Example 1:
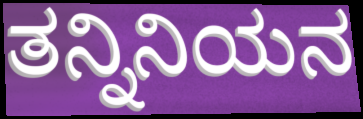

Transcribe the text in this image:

ತನ್ನಿನಿಯನ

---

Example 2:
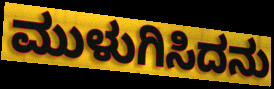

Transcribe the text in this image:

ಮುಳುಗಿಸಿದನು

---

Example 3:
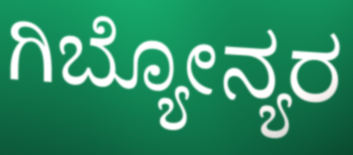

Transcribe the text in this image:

ಗಿಬ್ಯೋನ್ಯರ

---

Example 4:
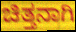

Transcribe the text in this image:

ಚಿತ್ತನಾಗಿ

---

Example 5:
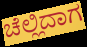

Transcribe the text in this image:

ಚೆಲ್ಲಿದಾಗ